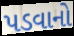
પડવાનો